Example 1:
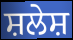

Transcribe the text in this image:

ਸ਼ਲੇਸ਼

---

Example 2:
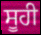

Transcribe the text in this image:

ਸੂਹੀ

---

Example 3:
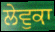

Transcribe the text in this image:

ਲੇਵੁਕਾ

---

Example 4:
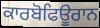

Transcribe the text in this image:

ਕਾਰਬੋਫਿਊਰਾਨ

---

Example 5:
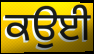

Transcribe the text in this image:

ਕਉਈ